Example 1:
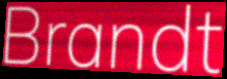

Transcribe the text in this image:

Brandt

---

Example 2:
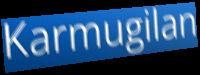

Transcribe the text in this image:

Karmugilan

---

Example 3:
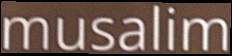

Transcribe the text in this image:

musalim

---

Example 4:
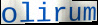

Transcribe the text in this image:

olirum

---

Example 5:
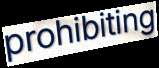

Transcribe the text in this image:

prohibiting